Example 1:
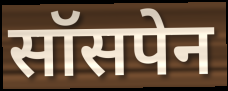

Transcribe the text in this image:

सॉसपेन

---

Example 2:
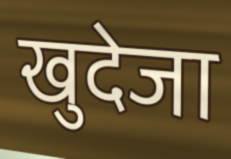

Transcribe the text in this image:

खुदेजा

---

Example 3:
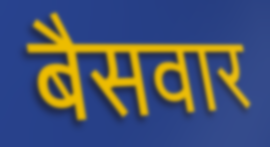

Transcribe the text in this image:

बैसवार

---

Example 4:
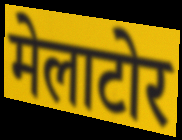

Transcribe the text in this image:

मेलाटोर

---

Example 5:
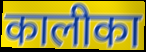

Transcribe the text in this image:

कालीका